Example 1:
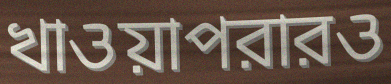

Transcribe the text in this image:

খাওয়াপরারও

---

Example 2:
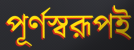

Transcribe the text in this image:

পূর্ণস্বরূপই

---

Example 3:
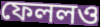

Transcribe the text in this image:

ফেললও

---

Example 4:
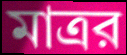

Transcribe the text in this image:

মাত্রর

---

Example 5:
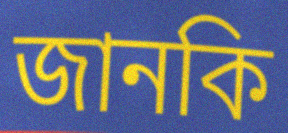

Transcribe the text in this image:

জানকি